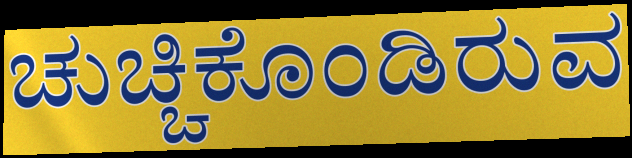
ಚುಚ್ಚಿಕೊಂಡಿರುವ